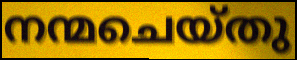
നന്മചെയ്തു